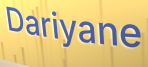
Dariyane